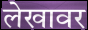
लेखावर